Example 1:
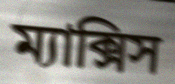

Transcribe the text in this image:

ম্যাক্সিস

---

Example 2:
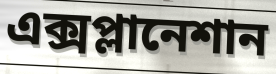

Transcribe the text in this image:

এক্সপ্লানেশান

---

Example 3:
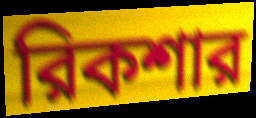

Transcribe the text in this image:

রিকশার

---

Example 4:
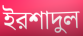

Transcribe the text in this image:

ইরশাদুল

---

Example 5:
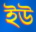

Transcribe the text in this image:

ইউ